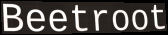
Beetroot